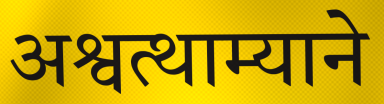
अश्वत्थाम्याने